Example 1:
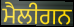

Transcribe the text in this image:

ਮੈਲੀਗਨ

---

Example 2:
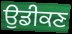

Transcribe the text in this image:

ਉਡੀਕਣ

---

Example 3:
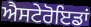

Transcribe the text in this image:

ਐਸਟੇਰੋਇਡਾਂ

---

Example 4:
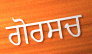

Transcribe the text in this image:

ਗੋਰਸਚ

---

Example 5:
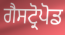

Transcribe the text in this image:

ਗੈਸਟ੍ਰੋਪੋਡ